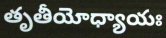
తృతీయోధ్యాయః